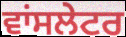
ਵਾਂਸਲੇਟਰ